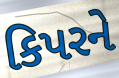
કિપરને